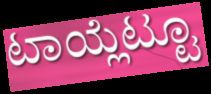
ಟಾಯ್ಲೆಟ್ಟೂ